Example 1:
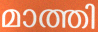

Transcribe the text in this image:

മാത്തി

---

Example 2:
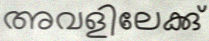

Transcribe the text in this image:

അവളിലേക്കു്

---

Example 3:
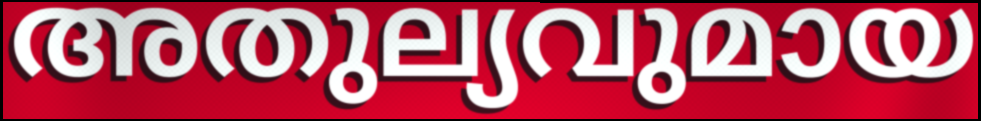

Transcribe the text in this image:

അതുല്യവുമായ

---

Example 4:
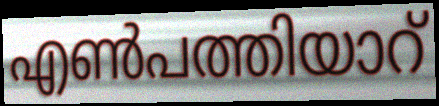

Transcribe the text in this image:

എൺപത്തിയാറ്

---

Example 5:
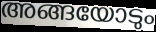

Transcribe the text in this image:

അങ്ങയോടും